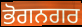
ਭੋਗਨਗਰ